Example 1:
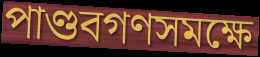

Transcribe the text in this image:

পাণ্ডবগণসমক্ষে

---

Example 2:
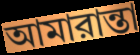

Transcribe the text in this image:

আমারান্তা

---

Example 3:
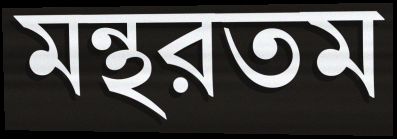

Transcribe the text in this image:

মন্থরতম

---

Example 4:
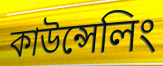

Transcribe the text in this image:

কাউন্সেলিং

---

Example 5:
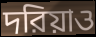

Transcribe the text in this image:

দরিয়াও